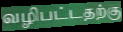
வழிபட்டதற்கு